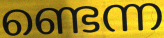
ണ്ടെന്ന